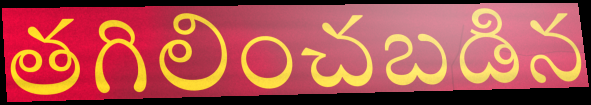
తగిలించబడిన